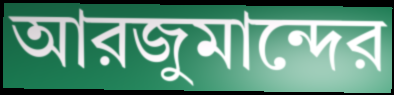
আরজুমান্দের